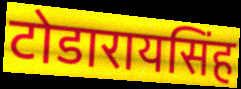
टोडारायसिंह